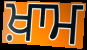
ਖ਼ਾਮ